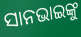
ସାନଭାଇଙ୍କୁ